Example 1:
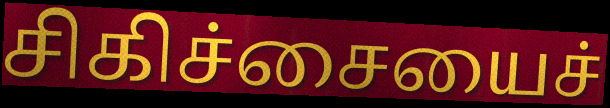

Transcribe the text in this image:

சிகிச்சையைச்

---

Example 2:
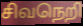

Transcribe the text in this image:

சிவநெறி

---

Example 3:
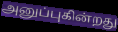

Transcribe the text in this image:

அனுப்புகின்றது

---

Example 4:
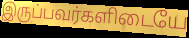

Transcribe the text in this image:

இருப்பவர்களிடையே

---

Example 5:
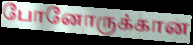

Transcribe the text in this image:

போனோருக்கான